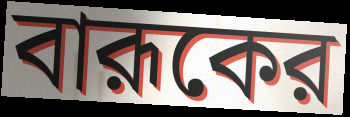
বারূকের